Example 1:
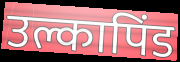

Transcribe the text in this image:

उल्‍कापिंड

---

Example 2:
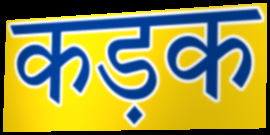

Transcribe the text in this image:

कड़क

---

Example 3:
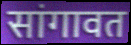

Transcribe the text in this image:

सांगावत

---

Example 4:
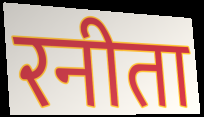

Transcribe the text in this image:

रनीता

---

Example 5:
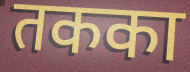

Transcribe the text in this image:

तकका